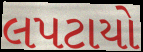
લપટાયો